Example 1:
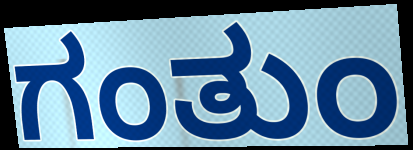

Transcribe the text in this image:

ಗಂತುಂ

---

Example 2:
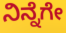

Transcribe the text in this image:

ನಿನ್ನೆಗೇ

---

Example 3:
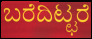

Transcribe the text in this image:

ಬರೆದಿಟ್ಟರೆ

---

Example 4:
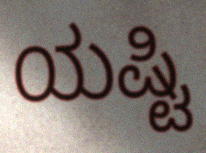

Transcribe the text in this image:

ಯಷ್ಟಿ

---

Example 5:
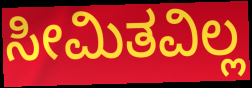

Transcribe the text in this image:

ಸೀಮಿತವಿಲ್ಲ